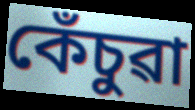
কেঁচুৱা